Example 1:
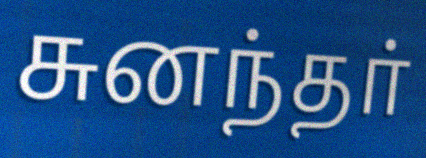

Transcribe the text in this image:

சுனந்தர்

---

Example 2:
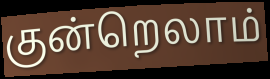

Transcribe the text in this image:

குன்றெலாம்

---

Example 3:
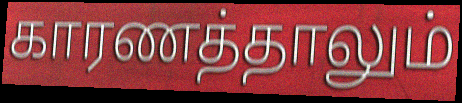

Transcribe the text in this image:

காரணத்தாலும்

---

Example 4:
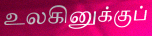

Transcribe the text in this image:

உலகினுக்குப்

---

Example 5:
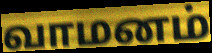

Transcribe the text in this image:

வாமனம்